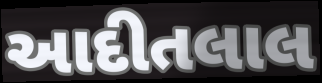
આદીતલાલ